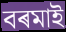
বৰমাই